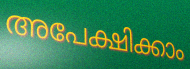
അപേക്ഷിക്കാം